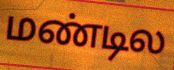
மண்டில